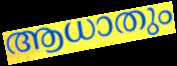
ആധാതും